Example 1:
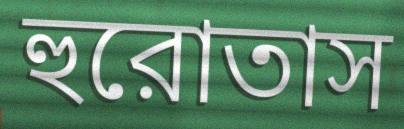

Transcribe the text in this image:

হুরোতাস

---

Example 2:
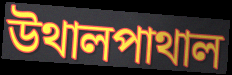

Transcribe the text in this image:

উথালপাথাল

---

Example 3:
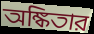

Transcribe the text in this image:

অঙ্কিতার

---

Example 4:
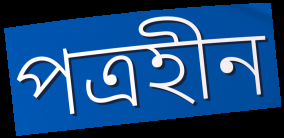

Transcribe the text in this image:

পত্রহীন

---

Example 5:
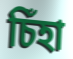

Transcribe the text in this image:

চিঁহা